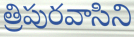
త్రిపురవాసిని